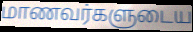
மாணவர்களுடைய